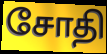
சோதி